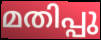
മതിപ്പു